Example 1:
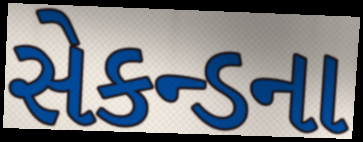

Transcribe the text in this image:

સેકન્ડના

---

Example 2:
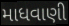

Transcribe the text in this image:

માધવાણી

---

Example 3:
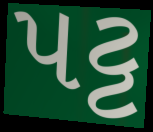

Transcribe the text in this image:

પટ્ટ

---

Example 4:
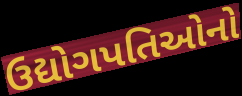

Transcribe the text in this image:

ઉદ્યોગપતિઓનો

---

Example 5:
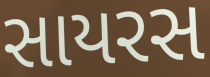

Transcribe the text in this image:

સાયરસ